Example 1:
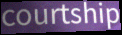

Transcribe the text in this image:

courtship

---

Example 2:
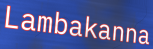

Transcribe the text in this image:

Lambakanna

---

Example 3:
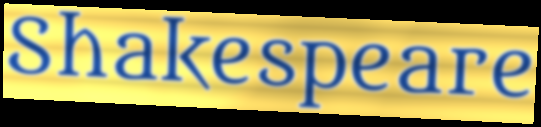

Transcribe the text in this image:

Shakespeare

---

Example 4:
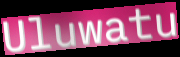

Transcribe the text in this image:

Uluwatu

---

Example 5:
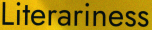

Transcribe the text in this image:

Literariness